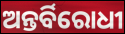
ଅନ୍ତର୍ବିରୋଧୀ